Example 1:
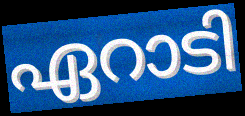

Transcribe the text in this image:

ഏറാടി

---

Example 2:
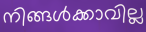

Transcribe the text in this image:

നിങ്ങൾക്കാവില്ല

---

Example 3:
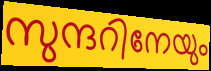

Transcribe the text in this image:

സുന്ദറിനേയും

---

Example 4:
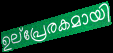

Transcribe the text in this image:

ഉല്പ്രേരകമായി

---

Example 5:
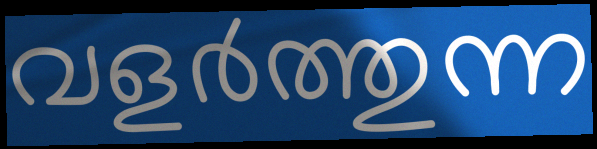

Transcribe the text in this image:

വളർത്തുന്ന